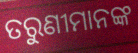
ତରୁଣୀମାନଙ୍କ